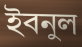
ইবনুল